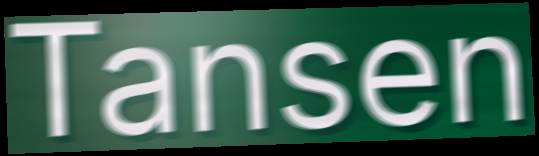
Tansen